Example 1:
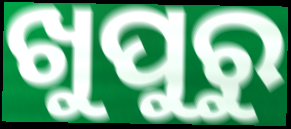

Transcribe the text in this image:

ଖୁପୁରୁ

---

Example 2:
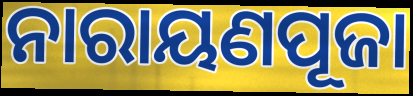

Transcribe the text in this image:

ନାରାୟଣପୂଜା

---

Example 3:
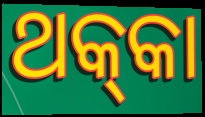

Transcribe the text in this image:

ଥକ୍‌କା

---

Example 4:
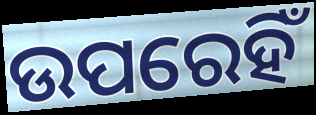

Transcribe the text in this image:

ଉପରେହିଁ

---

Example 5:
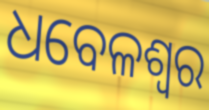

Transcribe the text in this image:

ଧବେଳଶ୍ୱର